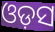
ଓଡ଼ସ